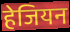
हेजियन